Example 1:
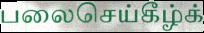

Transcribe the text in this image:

பலைசெய்கீழ்க்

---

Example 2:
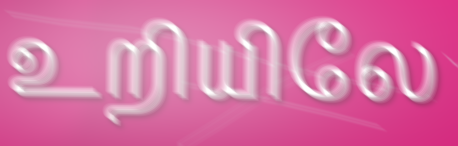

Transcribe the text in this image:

உறியிலே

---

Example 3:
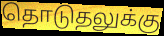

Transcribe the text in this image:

தொடுதலுக்கு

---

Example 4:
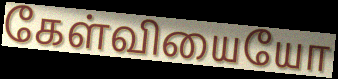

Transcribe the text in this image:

கேள்வியையோ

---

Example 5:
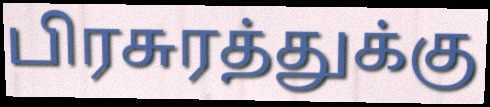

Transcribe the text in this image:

பிரசுரத்துக்கு